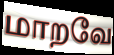
மாறவே